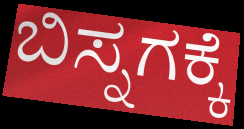
ಬಿಸ್ನಗಕ್ಕೆ